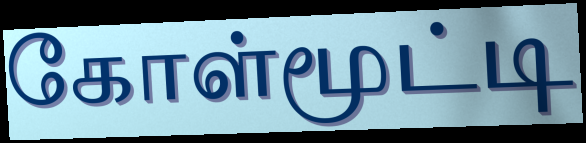
கோள்மூட்டி